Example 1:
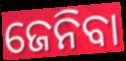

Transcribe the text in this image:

ଜେନିବା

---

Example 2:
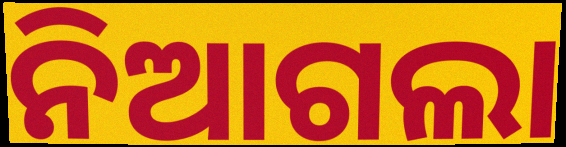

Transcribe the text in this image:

ନିଆଗଲା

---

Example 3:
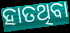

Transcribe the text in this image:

ହାତଥିବା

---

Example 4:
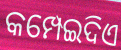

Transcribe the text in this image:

କମ୍ପେଇଦିଏ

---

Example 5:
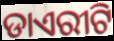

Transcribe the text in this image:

ଡାଏରୀଟି